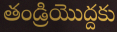
తండ్రియొద్దకు